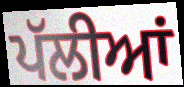
ਪੱਲੀਆਂ